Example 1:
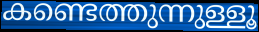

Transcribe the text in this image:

കണ്ടെത്തുന്നുള്ളൂ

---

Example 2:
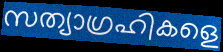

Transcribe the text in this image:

സത്യാഗ്രഹികളെ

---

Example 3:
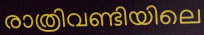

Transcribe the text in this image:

രാത്രിവണ്ടിയിലെ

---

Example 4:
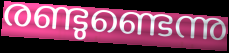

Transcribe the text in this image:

രണ്ടുണ്ടെന്നു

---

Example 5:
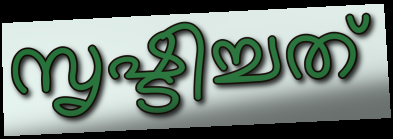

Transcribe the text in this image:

സൃഷ്ടിച്ചത്